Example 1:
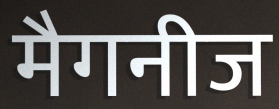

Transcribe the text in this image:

मैगनीज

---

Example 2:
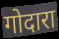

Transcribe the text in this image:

गोदारा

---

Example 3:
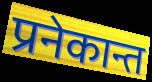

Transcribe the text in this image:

प्रनेकान्त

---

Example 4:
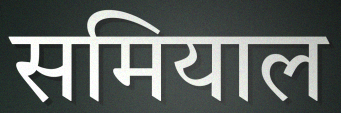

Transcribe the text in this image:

समियाल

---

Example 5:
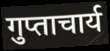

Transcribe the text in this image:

गुप्ताचार्य